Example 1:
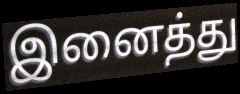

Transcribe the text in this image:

இனைத்து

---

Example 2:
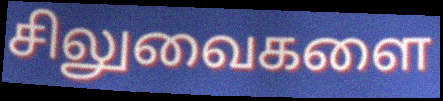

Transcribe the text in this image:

சிலுவைகளை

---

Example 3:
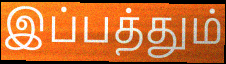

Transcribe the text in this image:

இப்பத்தும்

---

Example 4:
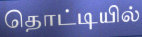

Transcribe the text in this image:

தொட்டியில்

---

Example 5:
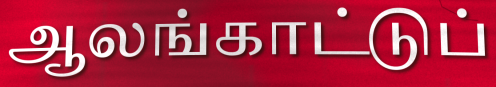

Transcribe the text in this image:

ஆலங்காட்டுப்